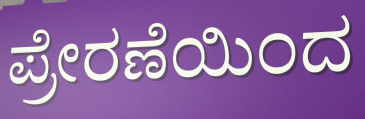
ಪ್ರೇರಣೆಯಿಂದ